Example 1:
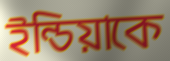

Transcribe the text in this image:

ইন্ডিয়াকে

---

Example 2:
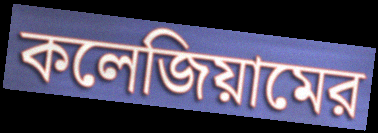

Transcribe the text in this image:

কলেজিয়ামের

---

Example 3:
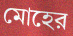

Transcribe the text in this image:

মোহের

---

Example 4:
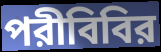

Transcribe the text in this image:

পরীবিবির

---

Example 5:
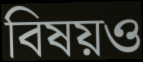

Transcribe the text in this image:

বিষয়ও